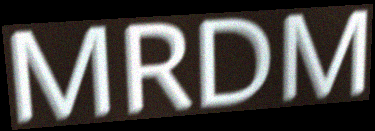
MRDM